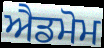
ਐਡਮੋਮ